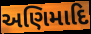
અણિમાદિ